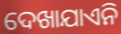
ଦେଖାଯାଏନି